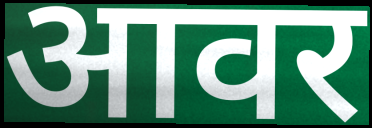
आवर